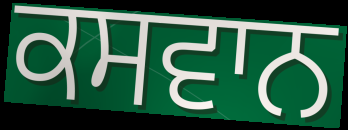
ਕਸਵਾਨ